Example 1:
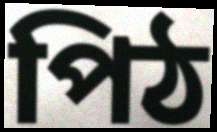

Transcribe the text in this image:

পিঠ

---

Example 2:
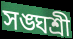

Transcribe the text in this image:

সঙ্ঘশ্রী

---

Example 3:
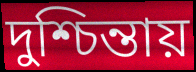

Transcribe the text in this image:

দুশ্চিন্তায়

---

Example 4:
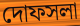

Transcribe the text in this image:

দোফসলা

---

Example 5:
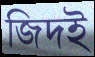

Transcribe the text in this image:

জিদই